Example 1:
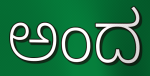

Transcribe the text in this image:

ಅಂದ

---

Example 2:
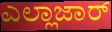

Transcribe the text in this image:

ಎಲ್ಲಾಜಾರ್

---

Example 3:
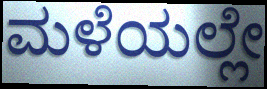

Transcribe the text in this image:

ಮಳೆಯಲ್ಲೇ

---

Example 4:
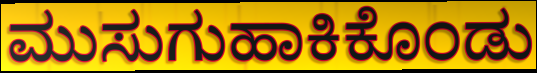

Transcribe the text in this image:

ಮುಸುಗುಹಾಕಿಕೊಂಡು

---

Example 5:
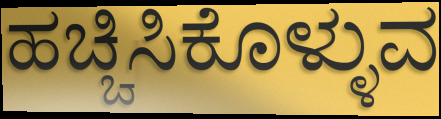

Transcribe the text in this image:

ಹಚ್ಚಿಸಿಕೊಳ್ಳುವ